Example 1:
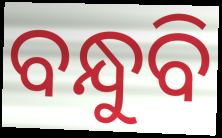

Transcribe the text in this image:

ବନ୍ଧୁବି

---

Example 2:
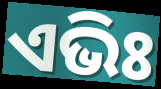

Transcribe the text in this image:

ଏଭିଃ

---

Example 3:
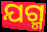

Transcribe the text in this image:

ଯଗ୍ମ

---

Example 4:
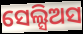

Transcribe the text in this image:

ସେଲ୍ସିଅସ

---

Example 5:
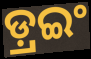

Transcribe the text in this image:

ଡ଼୍ରଇଂ